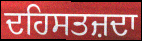
ਦਹਿਸਤਜ਼ਦਾ